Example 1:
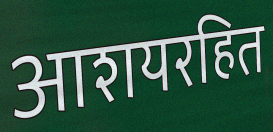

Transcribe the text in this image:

आशयरहित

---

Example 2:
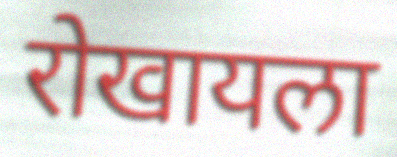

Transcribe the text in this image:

रोखायला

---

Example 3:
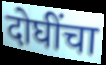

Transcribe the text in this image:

दोघींचा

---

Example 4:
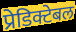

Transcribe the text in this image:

प्रेडिक्टेबल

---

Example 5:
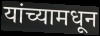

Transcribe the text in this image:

यांच्यामधून